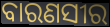
ବାରଣସୀର